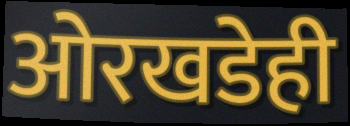
ओरखडेही